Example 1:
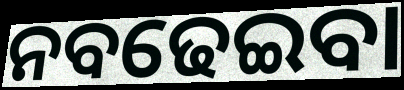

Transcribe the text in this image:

ନବଢେଇବା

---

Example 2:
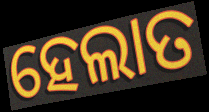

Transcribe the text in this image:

ହେଲାତ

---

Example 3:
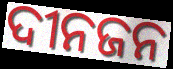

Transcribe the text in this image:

ଦୀନଜନ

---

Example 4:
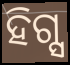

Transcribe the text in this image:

ହିଗ୍ସ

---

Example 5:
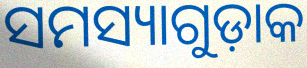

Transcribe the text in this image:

ସମସ୍ୟାଗୁଡ଼ାକ